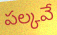
పల్కవే